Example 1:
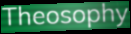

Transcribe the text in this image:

Theosophy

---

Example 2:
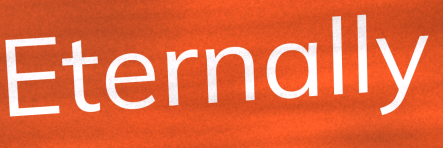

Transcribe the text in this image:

Eternally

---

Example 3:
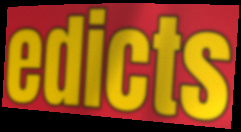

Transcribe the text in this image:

edicts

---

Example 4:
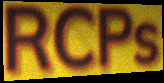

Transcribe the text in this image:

RCPs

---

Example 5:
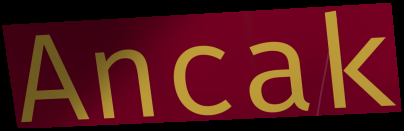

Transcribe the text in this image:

Ancak